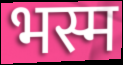
भस्म